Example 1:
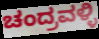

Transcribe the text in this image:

ಚಂದ್ರವಳ್ಳಿ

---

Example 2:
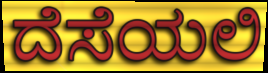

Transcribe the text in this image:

ದೆಸೆಯಲಿ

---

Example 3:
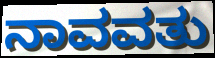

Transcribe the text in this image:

ನಾವವತು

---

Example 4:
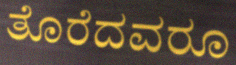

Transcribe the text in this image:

ತೊರೆದವರೂ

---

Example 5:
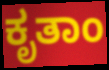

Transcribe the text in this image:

ಕೃತಾಂ